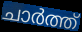
ചാർത്ത്